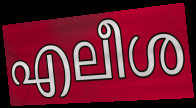
എലീശ